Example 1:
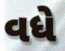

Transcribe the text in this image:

વધે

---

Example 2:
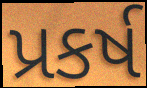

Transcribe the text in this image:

પ્રકર્ષ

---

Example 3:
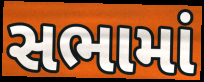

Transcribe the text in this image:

સભામાં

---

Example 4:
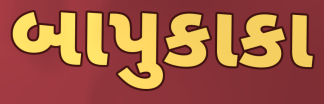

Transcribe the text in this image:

બાપુકાકા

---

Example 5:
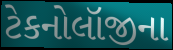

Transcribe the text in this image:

ટેકનોલૉજીના